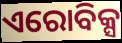
ଏରୋବିକ୍ସ